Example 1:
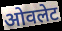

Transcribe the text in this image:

ओवलेट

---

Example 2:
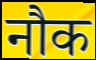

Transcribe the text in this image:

नौक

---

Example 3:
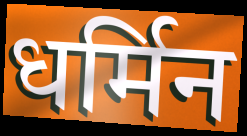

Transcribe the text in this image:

धर्मिन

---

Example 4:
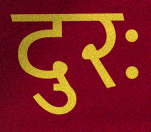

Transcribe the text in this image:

दुरः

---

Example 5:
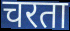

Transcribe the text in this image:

चरता